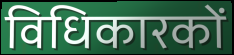
विधिकारकों